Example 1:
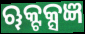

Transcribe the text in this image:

ୠକ୍ଟକ୍ସଜ୍ଞ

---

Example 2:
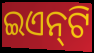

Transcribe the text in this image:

ଇଏନ୍‌ଟି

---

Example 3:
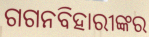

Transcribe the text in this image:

ଗଗନବିହାରୀଙ୍କର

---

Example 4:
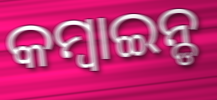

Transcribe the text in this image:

କମ୍ବାଇନ୍ଡ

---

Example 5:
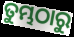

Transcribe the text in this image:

ତୁମ୍ଭଠାରୁ